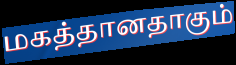
மகத்தானதாகும்